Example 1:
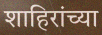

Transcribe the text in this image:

शाहिरांच्या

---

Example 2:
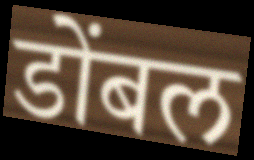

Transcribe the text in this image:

डोंबल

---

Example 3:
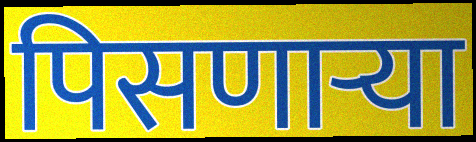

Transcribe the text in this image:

पिसणाऱ्या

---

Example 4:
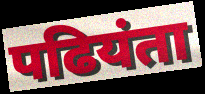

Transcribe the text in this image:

पढियंता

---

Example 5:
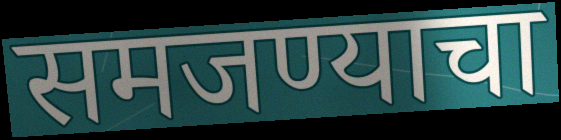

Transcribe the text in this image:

समजण्याचा